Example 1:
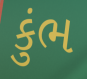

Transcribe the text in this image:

કુંભ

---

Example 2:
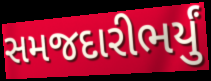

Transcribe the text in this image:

સમજદારીભર્યું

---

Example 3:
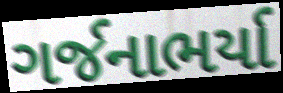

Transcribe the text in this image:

ગર્જનાભર્યા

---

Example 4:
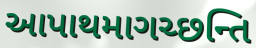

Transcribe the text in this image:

આપાથમાગચ્છન્તિ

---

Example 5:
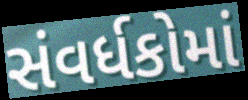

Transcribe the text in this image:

સંવર્ધકોમાં